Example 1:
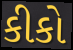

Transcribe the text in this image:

કીકો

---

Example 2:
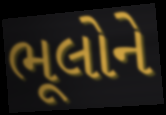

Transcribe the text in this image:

ભૂલોને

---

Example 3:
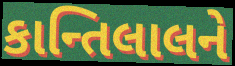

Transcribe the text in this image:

કાન્તિલાલને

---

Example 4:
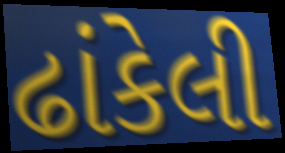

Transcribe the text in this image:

ઢાંકેલી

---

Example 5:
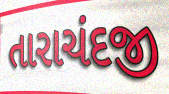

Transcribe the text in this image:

તારાચંદજી